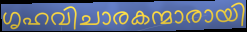
ഗൃഹവിചാരകന്മാരായി